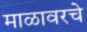
माळावरचे